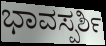
ಭಾವಸ್ಪರ್ಶಿ